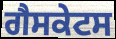
ਗੈਸਕੇਟਸ